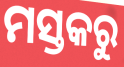
ମସ୍ତକରୁ